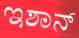
ಇಶಾನ್